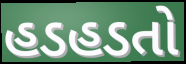
હડહડતો